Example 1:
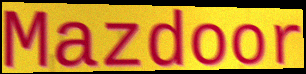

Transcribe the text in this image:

Mazdoor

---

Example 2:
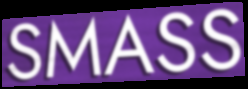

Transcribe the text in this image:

SMASS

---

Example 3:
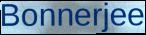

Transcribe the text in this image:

Bonnerjee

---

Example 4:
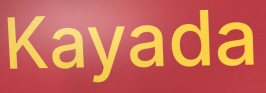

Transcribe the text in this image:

Kayada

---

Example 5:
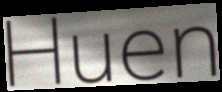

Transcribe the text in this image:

Huen